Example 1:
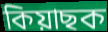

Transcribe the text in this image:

কিয়াছক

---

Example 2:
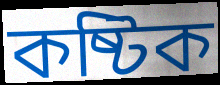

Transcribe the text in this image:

কষ্টিক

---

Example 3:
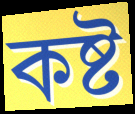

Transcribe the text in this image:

কষ্ট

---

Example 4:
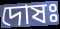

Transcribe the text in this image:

দোষঃ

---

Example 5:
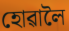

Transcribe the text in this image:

হোৱালৈ